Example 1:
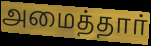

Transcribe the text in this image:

அமைத்தார்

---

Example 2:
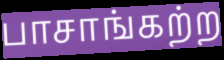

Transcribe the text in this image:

பாசாங்கற்ற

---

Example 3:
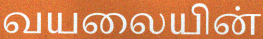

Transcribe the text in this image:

வயலையின்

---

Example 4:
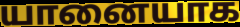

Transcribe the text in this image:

யானையாக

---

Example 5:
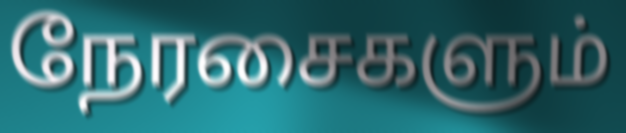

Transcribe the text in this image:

நேரசைகளும்